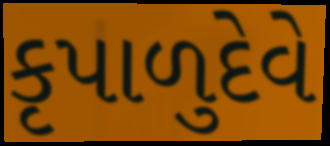
કૃપાળુદેવે